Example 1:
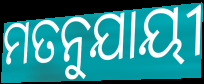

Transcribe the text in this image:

ମତନୁଯାୟୀ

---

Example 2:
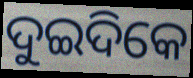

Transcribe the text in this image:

ଦୁଇଦିକେ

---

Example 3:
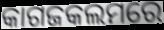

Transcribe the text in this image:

କାଗଜକଲମରେ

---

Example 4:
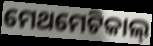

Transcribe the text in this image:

ମେଥମେଟିକାଲ୍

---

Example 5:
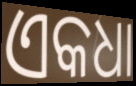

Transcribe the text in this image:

ଏକଧା